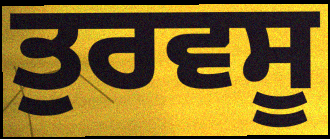
ਤੁਰਵਸੂ